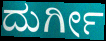
ದುರ್ಗೀ